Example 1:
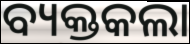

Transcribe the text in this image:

ବ୍ୟକ୍ତକଲା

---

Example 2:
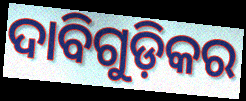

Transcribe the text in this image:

ଦାବିଗୁଡ଼ିକର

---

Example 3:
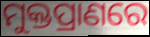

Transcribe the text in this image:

ମୁକ୍ତପ୍ରାଣରେ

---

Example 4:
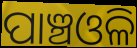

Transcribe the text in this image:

ପାଞ୍ଚଓଳି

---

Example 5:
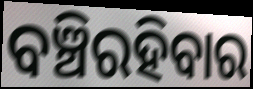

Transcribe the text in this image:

ବଞ୍ଚିରହିବାର